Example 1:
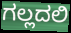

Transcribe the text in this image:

ಗಲ್ಲದಲಿ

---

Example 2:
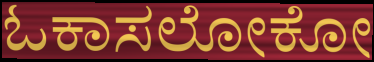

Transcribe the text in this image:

ಓಕಾಸಲೋಕೋ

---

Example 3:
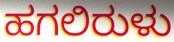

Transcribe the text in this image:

ಹಗಲಿರುಳು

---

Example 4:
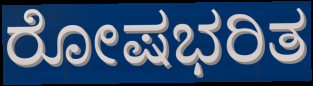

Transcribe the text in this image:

ರೋಷಭರಿತ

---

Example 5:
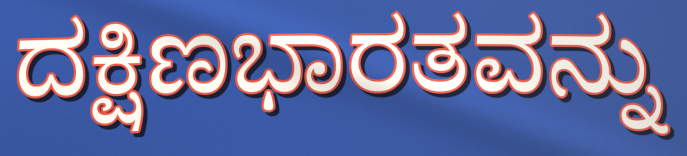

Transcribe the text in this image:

ದಕ್ಷಿಣಭಾರತವನ್ನು